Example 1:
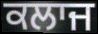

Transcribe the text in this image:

ਕਲਾਜ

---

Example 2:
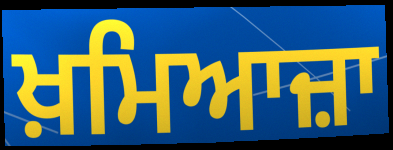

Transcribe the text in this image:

ਖ਼ਮਿਆਜ਼ਾ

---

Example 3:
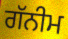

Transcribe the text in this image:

ਗੱਨੀਮ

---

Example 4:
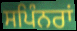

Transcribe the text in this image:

ਸਪਿੰਨਰਾਂ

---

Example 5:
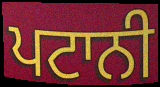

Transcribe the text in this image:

ਪਟਾਨੀ